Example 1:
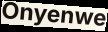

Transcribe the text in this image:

Onyenwe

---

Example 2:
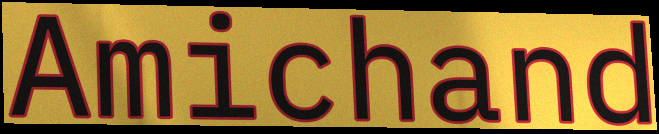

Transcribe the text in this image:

Amichand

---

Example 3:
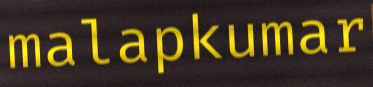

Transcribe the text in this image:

malapkumar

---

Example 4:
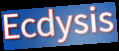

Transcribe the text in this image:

Ecdysis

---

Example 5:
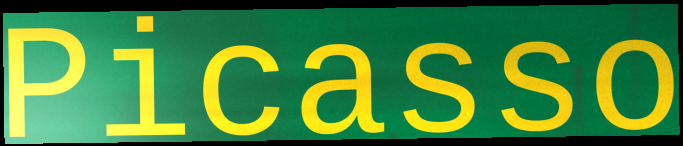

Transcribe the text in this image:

Picasso